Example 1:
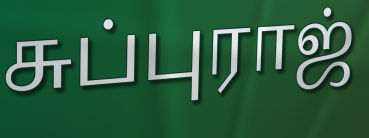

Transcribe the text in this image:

சுப்புராஜ்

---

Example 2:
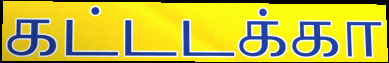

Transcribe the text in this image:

கட்டடக்கா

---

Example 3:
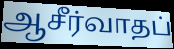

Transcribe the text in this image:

ஆசீர்வாதப்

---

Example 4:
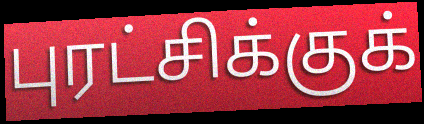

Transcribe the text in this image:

புரட்சிக்குக்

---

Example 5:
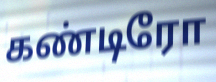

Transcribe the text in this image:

கண்டிரோ